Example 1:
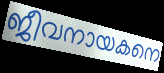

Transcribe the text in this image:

ജീവനായകനെ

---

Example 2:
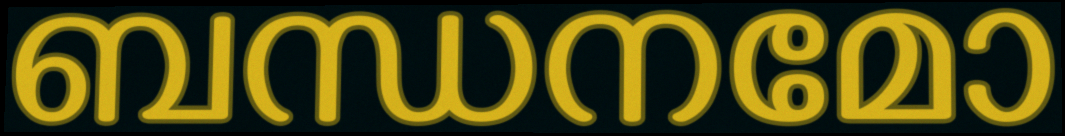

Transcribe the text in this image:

ബന്ധനമോ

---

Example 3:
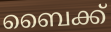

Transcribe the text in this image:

ബൈക്ക്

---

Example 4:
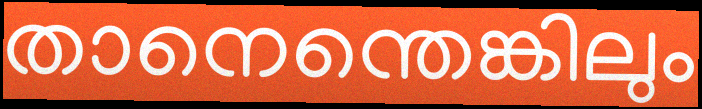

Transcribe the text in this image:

താനെന്തെങ്കിലും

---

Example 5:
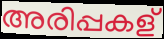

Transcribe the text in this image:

അരിപ്പകള്